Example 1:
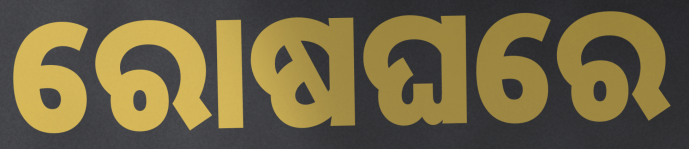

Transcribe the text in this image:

ରୋଷଘରେ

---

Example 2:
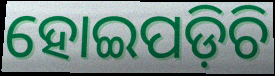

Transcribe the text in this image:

ହୋଇପଡ଼ିଚି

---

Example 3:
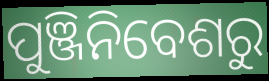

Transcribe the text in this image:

ପୁଞ୍ଜିନିବେଶରୁ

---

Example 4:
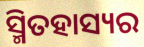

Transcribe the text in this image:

ସ୍ମିତହାସ୍ୟର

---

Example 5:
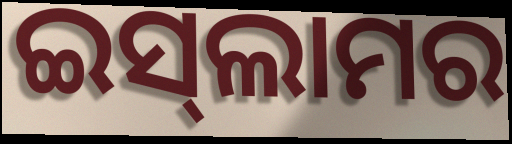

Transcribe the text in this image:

ଇସ୍‍ଲାମର